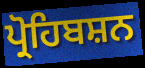
ਪ੍ਰੋਹਿਬਸ਼ਨ